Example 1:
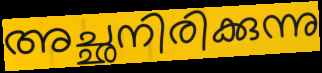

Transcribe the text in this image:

അച്ഛനിരിക്കുന്നു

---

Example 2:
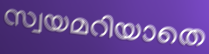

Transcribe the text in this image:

സ്വയമറിയാതെ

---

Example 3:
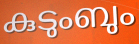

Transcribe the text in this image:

കുടുംബും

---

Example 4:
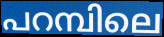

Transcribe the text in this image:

പറമ്പിലെ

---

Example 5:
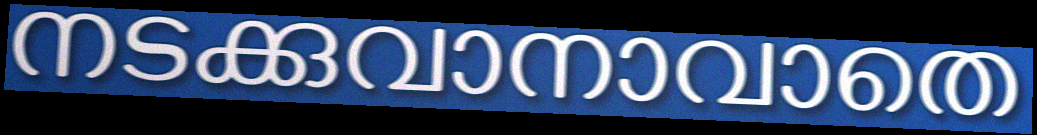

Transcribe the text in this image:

നടക്കുവാനാവാതെ